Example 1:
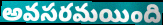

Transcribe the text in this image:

అవసరమయింది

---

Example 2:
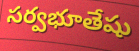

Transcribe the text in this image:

సర్వభూతేషు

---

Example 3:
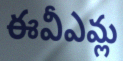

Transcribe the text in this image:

ఈవీఎమ్ల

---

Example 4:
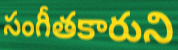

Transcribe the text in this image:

సంగీతకారుని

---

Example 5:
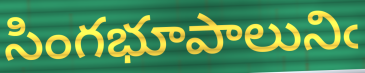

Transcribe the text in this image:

సింగభూపాలునిఁ